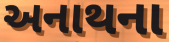
અનાથના